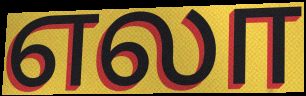
எலா